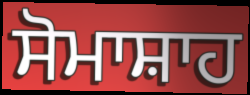
ਸੋਮਾਸ਼ਾਹ